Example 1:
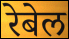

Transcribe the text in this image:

रेबेल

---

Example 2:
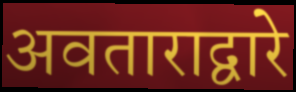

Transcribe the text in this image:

अवताराद्वारे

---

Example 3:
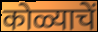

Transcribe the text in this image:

कोळ्याचें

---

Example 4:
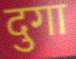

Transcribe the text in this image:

दुगा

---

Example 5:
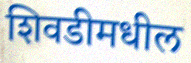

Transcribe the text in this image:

शिवडीमधील